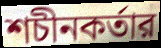
শচীনকর্তার